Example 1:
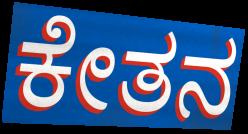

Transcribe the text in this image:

ಕೇತನ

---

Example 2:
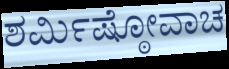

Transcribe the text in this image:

ಶರ್ಮಿಷ್ಠೋವಾಚ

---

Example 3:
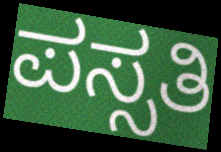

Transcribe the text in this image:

ಪಸ್ಸತಿ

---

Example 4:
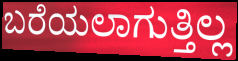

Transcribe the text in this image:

ಬರೆಯಲಾಗುತ್ತಿಲ್ಲ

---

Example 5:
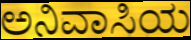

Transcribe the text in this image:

ಅನಿವಾಸಿಯ